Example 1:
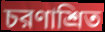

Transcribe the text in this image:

চরণাশ্রিত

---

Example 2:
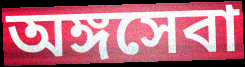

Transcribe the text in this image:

অঙ্গসেবা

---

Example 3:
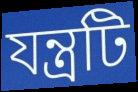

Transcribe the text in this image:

যন্ত্রটি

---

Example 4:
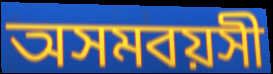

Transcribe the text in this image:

অসমবয়সী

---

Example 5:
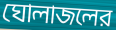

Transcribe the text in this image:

ঘোলাজলের